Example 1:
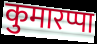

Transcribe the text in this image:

कुमारप्पा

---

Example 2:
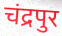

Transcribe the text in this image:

चंद्रपुर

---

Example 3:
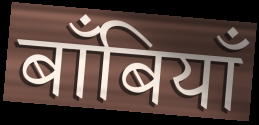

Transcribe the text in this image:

बाँबियाँ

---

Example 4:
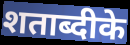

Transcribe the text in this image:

शताब्दीके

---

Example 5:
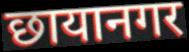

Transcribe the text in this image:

छायानगर